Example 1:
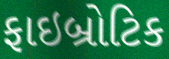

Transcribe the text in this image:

ફાઇબ્રોટિક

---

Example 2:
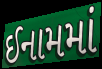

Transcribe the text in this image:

ઈનામમાં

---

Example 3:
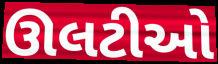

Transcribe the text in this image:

ઊલટીઓ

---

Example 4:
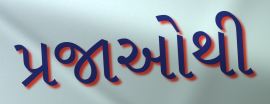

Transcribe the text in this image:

પ્રજાઓથી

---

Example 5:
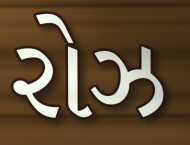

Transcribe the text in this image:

રોઝ